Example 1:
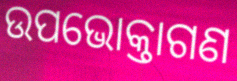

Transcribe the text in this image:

ଉପଭୋକ୍ତାଗଣ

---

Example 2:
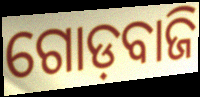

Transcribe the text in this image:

ଗୋଡ଼ବାଜି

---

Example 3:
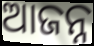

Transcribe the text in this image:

ଆଜନ୍ନ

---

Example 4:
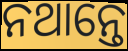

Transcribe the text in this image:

ନଥାନ୍ତେ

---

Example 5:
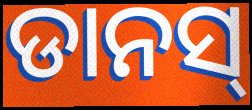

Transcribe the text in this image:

ଡାନସ୍